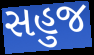
સહુજ